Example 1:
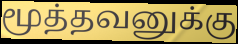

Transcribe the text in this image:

மூத்தவனுக்கு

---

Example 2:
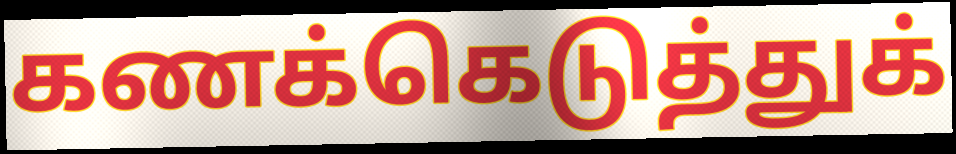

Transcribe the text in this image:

கணக்கெடுத்துக்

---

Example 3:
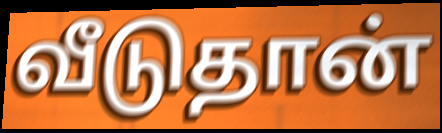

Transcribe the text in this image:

வீடுதான்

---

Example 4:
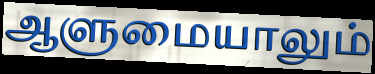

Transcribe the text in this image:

ஆளுமையாலும்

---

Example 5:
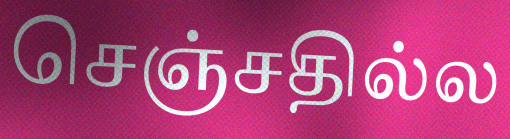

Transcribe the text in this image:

செஞ்சதில்ல